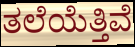
ತಲೆಯೆತ್ತಿವೆ